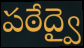
పఠేద్వై